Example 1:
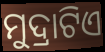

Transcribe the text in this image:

ମୁଦ୍ରାଟିଏ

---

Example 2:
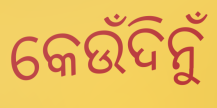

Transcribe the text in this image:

କେଉଁଦିନୁଁ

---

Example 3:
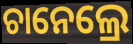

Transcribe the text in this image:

ଚାନେଲ୍ରେ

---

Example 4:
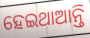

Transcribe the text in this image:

ହେଇଥାଆନ୍ତି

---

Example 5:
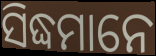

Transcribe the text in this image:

ସିଦ୍ଧମାନେ